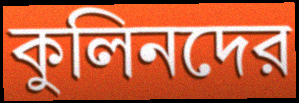
কুলিনদের